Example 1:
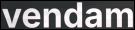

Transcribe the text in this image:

vendam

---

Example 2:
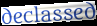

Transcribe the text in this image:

declassed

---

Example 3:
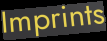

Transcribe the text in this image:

Imprints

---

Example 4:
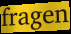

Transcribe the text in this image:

fragen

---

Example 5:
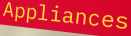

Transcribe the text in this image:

Appliances